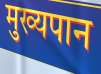
मुख्यपान